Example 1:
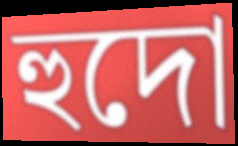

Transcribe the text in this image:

হুদো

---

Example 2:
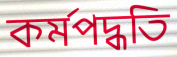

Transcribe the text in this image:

কর্মপদ্ধতি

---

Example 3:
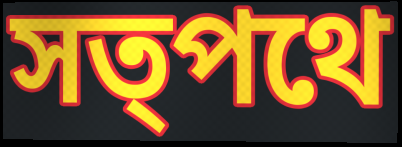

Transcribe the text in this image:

সত্পথে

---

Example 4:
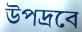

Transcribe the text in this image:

উপদ্রবে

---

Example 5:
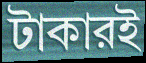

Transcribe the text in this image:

টাকারই